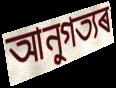
আনুগত্যৰ